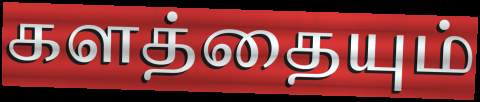
களத்தையும்